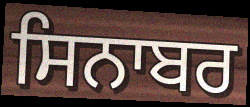
ਸਿਨਾਬਰ